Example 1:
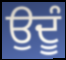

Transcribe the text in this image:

ਉਦੂੰ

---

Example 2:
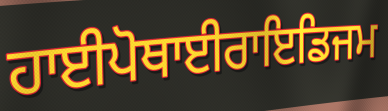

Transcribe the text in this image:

ਹਾਈਪੋਥਾਈਰਾਇਡਿਜਮ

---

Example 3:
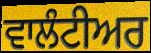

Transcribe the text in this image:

ਵਾਲੰਟੀਅਰ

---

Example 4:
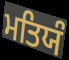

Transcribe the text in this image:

ਮਤਿਯੰ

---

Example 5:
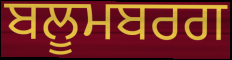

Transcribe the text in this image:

ਬਲੂਮਬਰਗ